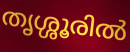
തൃശ്ശൂരിൽ